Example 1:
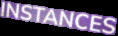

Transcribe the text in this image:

INSTANCES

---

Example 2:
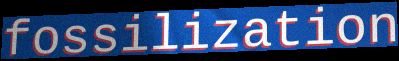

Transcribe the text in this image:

fossilization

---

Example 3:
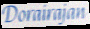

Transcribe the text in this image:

Dorairajan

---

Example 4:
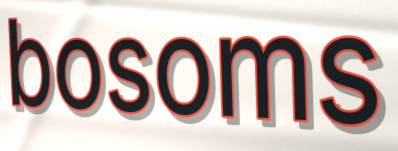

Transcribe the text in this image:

bosoms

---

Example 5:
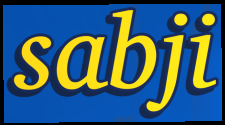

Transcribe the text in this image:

sabji